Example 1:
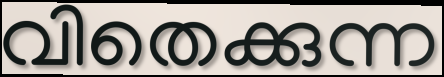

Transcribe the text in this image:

വിതെക്കുന്ന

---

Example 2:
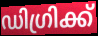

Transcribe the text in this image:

ഡിഗ്രിക്ക്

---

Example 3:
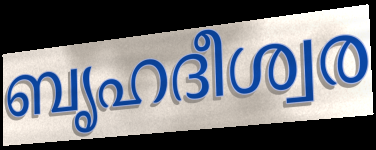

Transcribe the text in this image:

ബൃഹദീശ്വര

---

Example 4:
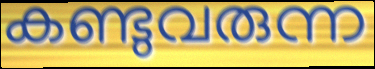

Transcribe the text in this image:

കണ്ടുവരുന്ന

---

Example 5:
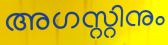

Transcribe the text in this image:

അഗസ്റ്റിനും